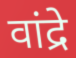
वांद्रे